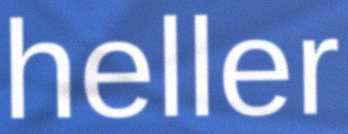
heller